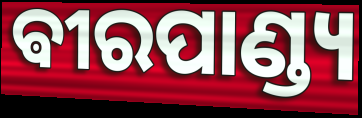
ଵୀରପାଣ୍ଡ୍ୟ